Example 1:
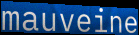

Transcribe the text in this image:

mauveine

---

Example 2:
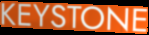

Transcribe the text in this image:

KEYSTONE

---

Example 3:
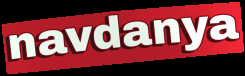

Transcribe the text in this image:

navdanya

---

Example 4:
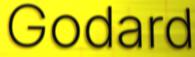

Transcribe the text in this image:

Godard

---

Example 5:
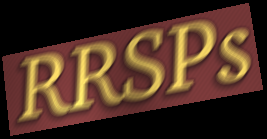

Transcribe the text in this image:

RRSPs